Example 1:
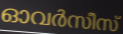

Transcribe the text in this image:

ഓവർസീസ്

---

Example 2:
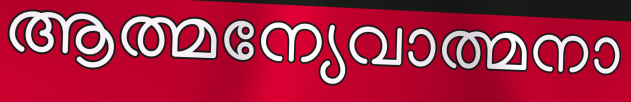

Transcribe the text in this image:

ആത്മന്യേവാത്മനാ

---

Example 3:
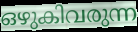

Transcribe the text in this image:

ഒഴുകിവരുന്ന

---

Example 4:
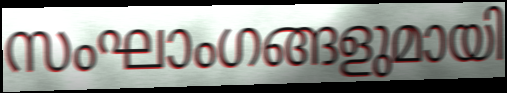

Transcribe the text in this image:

സംഘാംഗങ്ങളുമായി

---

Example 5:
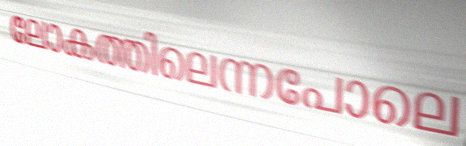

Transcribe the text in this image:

ലോകത്തിലെന്നപോലെ